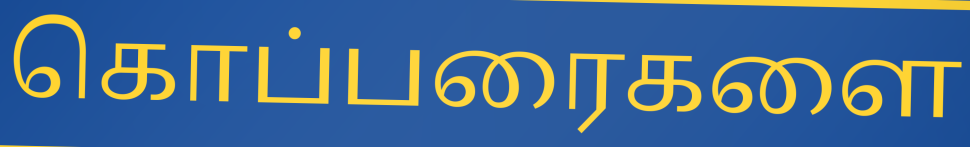
கொப்பரைகளை